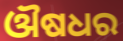
ଔଷଧର